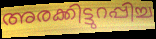
അരക്കിട്ടുറപ്പിച്ച